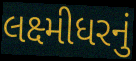
લક્ષ્મીધરનું